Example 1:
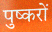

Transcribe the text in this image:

पुष्करों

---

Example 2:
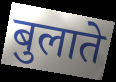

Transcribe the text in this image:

बुलाते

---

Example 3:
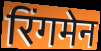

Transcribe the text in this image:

रिंगमेन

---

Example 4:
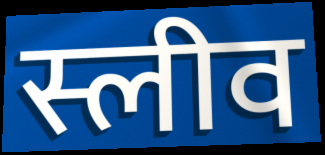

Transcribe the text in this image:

स्लीव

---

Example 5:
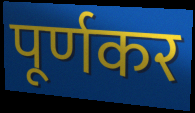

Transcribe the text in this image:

पूर्णकर